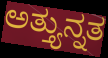
ಅತ್ತ್ಯುನ್ನತ